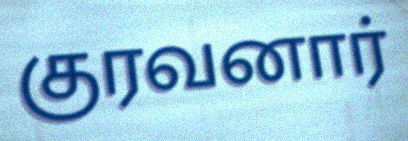
குரவனார்